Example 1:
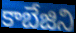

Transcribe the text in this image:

కాబేజిని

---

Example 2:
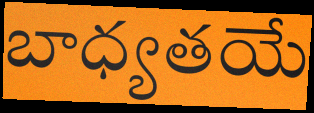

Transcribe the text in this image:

బాధ్యతయే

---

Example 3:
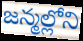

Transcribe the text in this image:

జన్మల్లోని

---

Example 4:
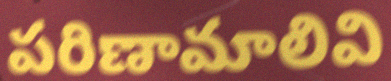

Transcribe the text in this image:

పరిణామాలివి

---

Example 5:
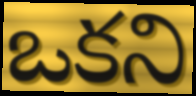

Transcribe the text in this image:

ఒకని